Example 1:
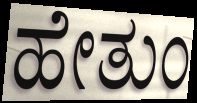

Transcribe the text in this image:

ಹೇತುಂ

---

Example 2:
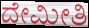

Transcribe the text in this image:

ದೇಮೀತಿ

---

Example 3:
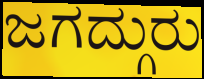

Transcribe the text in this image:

ಜಗದ್ಗುರು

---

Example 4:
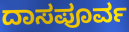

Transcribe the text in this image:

ದಾಸಪೂರ್ವ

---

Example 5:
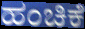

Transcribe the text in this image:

ಹಂಚಿಕೆ